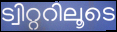
ട്വിറ്ററിലൂടെ